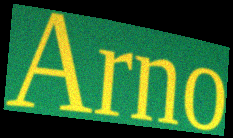
Arno